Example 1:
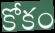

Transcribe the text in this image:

కోకం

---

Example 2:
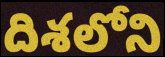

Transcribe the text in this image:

దిశలోని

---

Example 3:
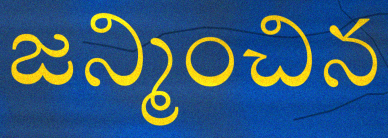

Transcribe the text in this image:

జన్మించిన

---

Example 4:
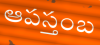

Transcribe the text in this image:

ఆపస్తంబ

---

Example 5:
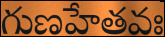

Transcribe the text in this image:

గుణహేతవః